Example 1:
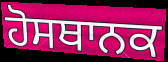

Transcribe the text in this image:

ਹੋਸਥਾਨਕ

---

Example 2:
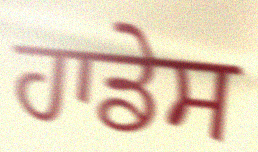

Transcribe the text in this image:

ਹਾਡੇਸ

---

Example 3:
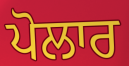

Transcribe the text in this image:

ਪੋਲਾਰ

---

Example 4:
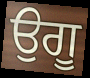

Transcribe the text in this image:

ਉਗੂ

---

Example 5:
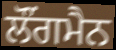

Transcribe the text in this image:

ਲੌਂਗਮੈਨ